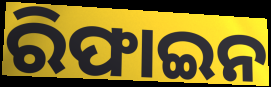
ରିଫାଇନ